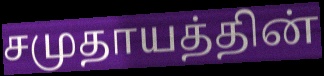
சமுதாயத்தின்